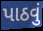
પાઠવું